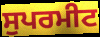
ਸੁਪਰਮੀਟ